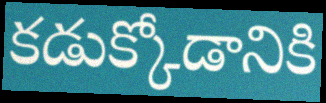
కడుక్కోడానికి